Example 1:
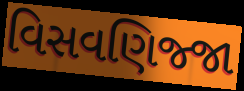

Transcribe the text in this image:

વિસવણિજ્જા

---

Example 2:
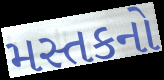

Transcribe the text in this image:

મસ્તકનો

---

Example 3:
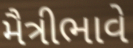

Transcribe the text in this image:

મૈત્રીભાવે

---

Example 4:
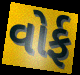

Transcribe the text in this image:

વોર્ફ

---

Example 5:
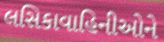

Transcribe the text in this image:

લસિકાવાહિનીઓને